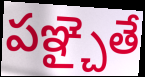
పఞ్చైతే